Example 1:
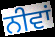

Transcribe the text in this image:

ਨੀਵਾਂ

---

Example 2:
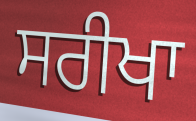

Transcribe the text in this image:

ਸਰੀਖਾ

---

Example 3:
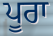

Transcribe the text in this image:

ਪੂਰਾ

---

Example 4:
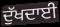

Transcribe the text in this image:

ਦੁੱਖਦਾਈ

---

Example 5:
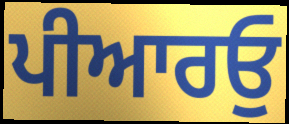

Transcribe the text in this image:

ਪੀਆਰਓੁ